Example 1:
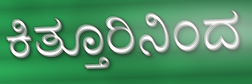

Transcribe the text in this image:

ಕಿತ್ತೂರಿನಿಂದ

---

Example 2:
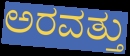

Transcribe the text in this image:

ಅರವತ್ತು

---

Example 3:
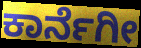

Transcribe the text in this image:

ಕಾರ್ನೆಗೀ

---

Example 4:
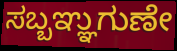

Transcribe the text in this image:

ಸಬ್ಬಞ್ಞುಗುಣೇ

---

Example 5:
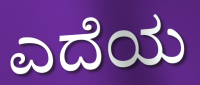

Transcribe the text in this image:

ಎದೆಯ